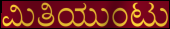
ಮಿತಿಯುಂಟು